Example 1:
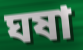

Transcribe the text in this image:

ঘষা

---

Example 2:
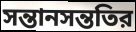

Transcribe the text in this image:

সন্তানসন্ততির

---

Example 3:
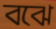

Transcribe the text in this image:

বঝে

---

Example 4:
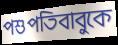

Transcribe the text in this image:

পশুপতিবাবুকে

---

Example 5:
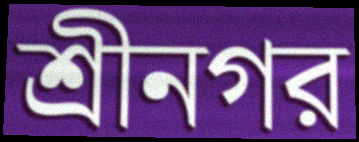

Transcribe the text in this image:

শ্রীনগর